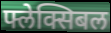
फ्लेक्सिबल